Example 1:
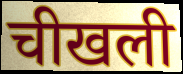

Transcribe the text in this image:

चीखली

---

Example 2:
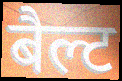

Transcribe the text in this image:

बैल्ट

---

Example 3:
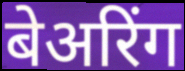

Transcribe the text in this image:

बेअरिंग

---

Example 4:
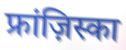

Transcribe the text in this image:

फ्रांज़िस्का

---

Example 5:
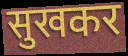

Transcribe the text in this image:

सुखकर